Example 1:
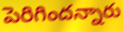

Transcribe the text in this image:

పెరిగిందన్నారు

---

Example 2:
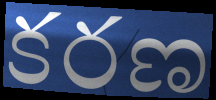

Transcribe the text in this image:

కరణ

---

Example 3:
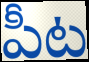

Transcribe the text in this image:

పీట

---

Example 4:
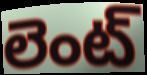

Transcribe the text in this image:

లెంట్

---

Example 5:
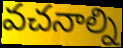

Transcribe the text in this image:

వచనాల్ని